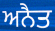
ਅਨੈਤ